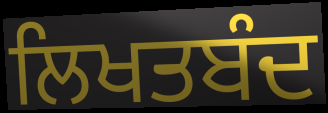
ਲਿਖਤਬੰਦ